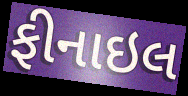
ફીનાઇલ